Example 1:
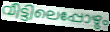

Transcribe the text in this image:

വീട്ടിലെപ്പോഴും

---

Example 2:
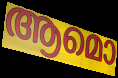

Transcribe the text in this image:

ആമൊ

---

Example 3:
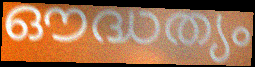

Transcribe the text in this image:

ഔദ്ധത്യം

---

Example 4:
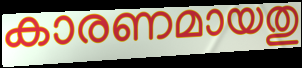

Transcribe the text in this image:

കാരണമായതു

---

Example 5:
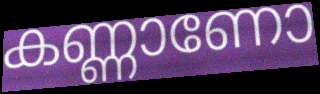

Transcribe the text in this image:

കണ്ണാണോ